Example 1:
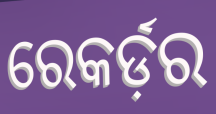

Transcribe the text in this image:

ରେକର୍ଡ଼ର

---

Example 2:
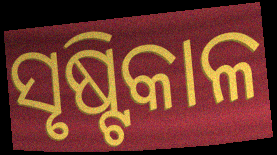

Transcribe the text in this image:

ସୃଷ୍ଟିକାଳ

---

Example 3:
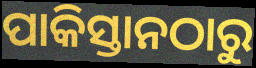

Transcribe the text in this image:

ପାକିସ୍ତାନଠାରୁ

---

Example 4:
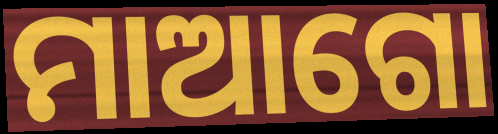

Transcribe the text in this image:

ମାଆଗୋ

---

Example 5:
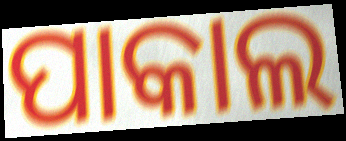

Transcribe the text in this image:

ପାକାଲ